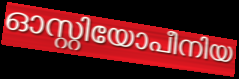
ഓസ്റ്റിയോപീനിയ